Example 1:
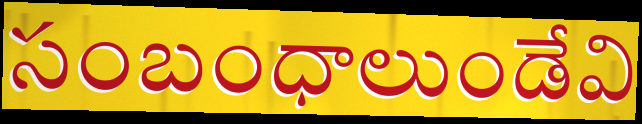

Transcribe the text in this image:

సంబంధాలుండేవి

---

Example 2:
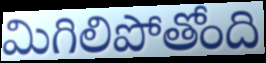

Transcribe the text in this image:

మిగిలిపోతోంది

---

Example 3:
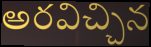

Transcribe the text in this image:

అరవిచ్చిన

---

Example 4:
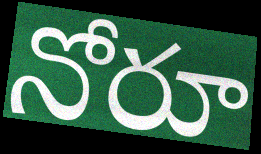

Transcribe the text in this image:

నోరూ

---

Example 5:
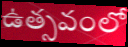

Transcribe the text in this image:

ఉత్సవంలో